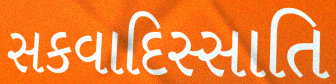
સકવાદિસ્સાતિ